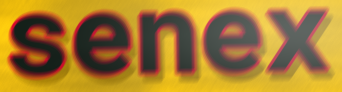
senex